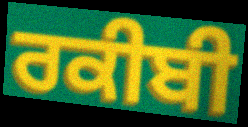
ਰਕੀਬੀ